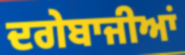
ਦਗੇਬਾਜੀਆਂ